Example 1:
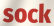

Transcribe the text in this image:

sock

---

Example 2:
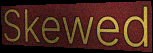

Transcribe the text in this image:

Skewed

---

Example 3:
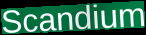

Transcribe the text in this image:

Scandium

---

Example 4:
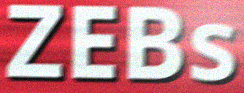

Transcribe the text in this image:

ZEBs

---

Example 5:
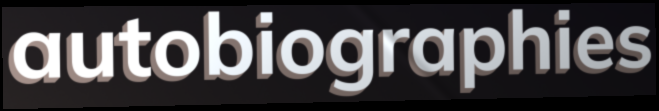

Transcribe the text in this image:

autobiographies